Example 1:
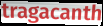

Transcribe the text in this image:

tragacanth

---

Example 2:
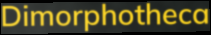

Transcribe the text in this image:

Dimorphotheca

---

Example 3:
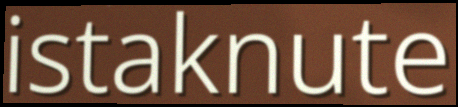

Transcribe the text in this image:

istaknute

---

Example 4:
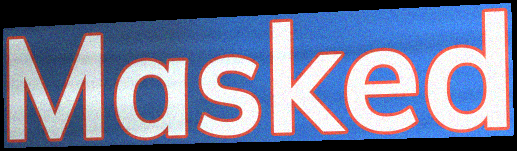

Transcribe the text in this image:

Masked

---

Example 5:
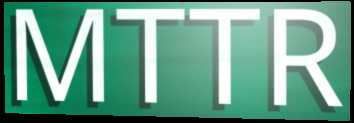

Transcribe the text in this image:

MTTR